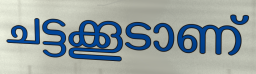
ചട്ടക്കൂടാണ്